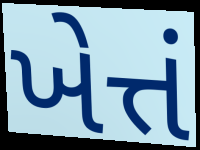
ખેત્તં